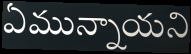
ఏమున్నాయని